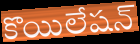
కొయిలేషన్